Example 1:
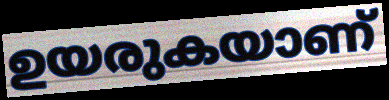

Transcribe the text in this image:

ഉയരുകയാണ്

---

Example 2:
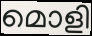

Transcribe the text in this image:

മൊളി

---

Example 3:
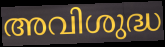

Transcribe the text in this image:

അവിശുദ്ധ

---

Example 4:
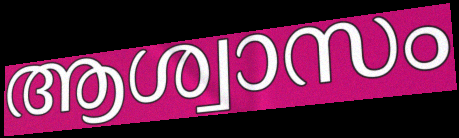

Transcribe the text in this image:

ആശ്വാസം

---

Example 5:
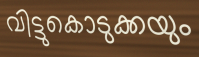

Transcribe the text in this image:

വിട്ടുകൊടുക്കയും